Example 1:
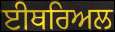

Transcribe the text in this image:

ਈਥਰਿਅਲ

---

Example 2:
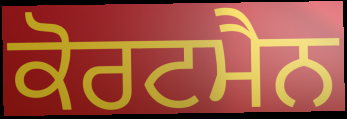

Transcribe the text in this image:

ਕੋਰਟਮੈਨ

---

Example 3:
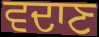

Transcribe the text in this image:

ਵਦਾਣ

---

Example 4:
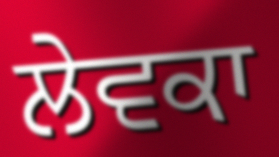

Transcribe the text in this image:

ਲੇਵਕਾ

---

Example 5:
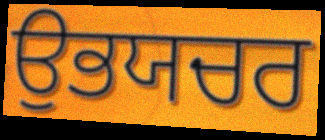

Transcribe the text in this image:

ਉਭਯਚਰ